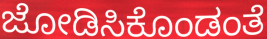
ಜೋಡಿಸಿಕೊಂಡಂತೆ